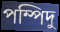
পম্পিদু